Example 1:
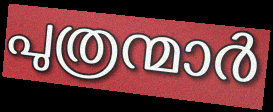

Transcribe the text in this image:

പുത്രന്മാർ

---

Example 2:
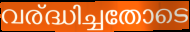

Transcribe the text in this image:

വര്ദ്ധിച്ചതോടെ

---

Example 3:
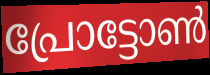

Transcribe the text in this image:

പ്രോട്ടോൺ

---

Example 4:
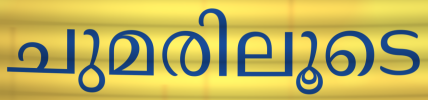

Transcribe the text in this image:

ചുമരിലൂടെ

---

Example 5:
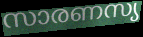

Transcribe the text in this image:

സാരണസ്യ